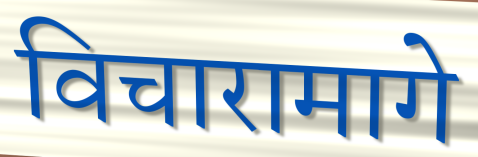
विचारामागे